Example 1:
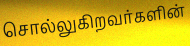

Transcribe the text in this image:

சொல்லுகிறவர்களின்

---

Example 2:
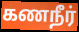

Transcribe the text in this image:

கணநீர்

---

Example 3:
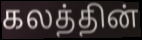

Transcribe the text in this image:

கலத்தின்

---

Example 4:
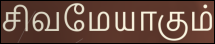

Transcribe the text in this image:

சிவமேயாகும்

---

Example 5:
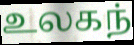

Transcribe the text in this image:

உலகந்